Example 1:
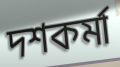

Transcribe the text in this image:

দশকর্মা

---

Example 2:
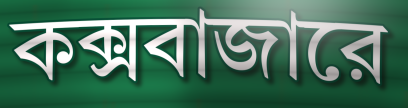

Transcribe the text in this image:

কক্সবাজারে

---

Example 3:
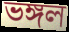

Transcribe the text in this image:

ভঙ্গল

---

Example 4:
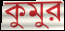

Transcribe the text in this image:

কুমুর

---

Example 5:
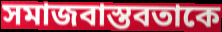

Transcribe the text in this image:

সমাজবাস্তবতাকে